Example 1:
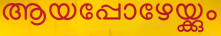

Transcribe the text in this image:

ആയപ്പോഴേയ്ക്കും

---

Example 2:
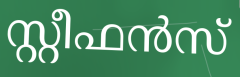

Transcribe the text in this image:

സ്റ്റീഫൻസ്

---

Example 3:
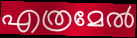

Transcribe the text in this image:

എത്രമേൽ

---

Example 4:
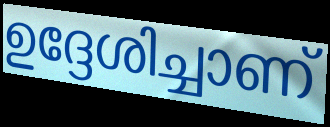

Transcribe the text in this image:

ഉദ്ദേശിച്ചാണ്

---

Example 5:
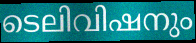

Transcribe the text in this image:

ടെലിവിഷനും